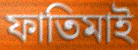
ফাতিমাই